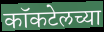
कॉकटेलच्या